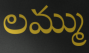
లమ్ము